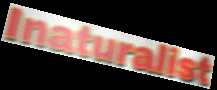
Inaturalist